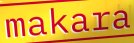
makara